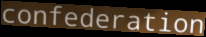
confederation